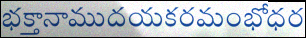
భక్తానాముదయకరమంభోధర